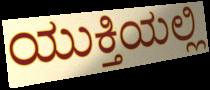
ಯುಕ್ತಿಯಲ್ಲಿ